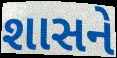
શાસને